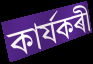
কাৰ্যকৰী